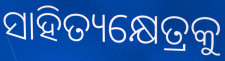
ସାହିତ୍ୟକ୍ଷେତ୍ରକୁ